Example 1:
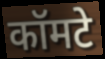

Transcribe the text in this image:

कॉमटे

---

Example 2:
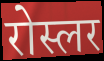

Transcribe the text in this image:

रोस्लर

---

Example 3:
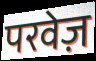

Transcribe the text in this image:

परवेज़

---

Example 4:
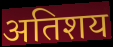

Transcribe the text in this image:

अतिशय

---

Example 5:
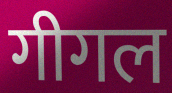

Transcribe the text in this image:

गीगल